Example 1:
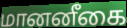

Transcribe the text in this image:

மானனீகை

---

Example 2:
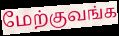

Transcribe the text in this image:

மேற்குவங்க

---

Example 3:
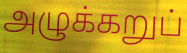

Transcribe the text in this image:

அழுக்கறுப்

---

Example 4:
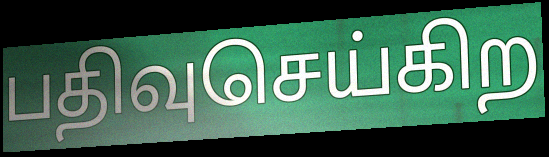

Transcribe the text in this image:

பதிவுசெய்கிற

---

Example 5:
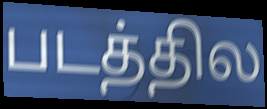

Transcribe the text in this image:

படத்தில